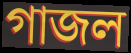
গাজল